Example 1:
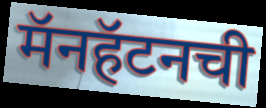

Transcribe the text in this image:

मॅनहॅटनची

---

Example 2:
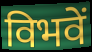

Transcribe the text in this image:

विभवें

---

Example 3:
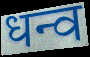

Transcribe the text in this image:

धन्व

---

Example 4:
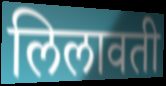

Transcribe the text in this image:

लिलावती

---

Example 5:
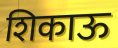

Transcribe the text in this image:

शिकाऊ